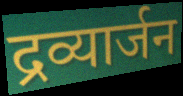
द्रव्यार्जन